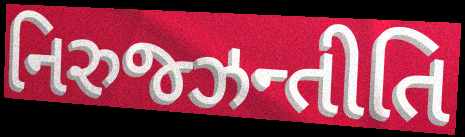
નિરુજ્ઝન્તીતિ